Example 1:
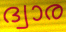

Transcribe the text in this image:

ദ്വാര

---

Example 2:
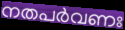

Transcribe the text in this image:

നതപർവണഃ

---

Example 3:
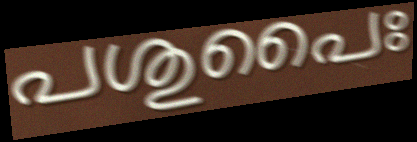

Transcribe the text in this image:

പശുപൈഃ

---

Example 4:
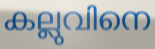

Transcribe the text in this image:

കല്ലുവിനെ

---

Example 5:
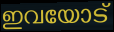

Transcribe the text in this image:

ഇവയോട്